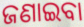
ଜଣାଇବା